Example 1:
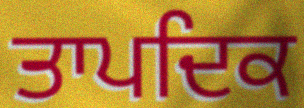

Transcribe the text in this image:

ਤਾਪਦਿਕ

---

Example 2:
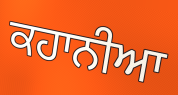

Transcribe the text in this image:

ਕਹਾਨੀਆ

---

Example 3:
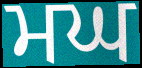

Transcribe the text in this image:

ਮਘ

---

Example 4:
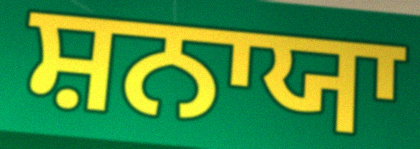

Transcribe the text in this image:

ਸ਼ਨਾਯਾ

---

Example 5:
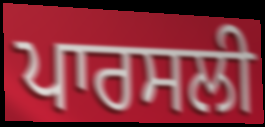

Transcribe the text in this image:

ਪਾਰਸਲੀ